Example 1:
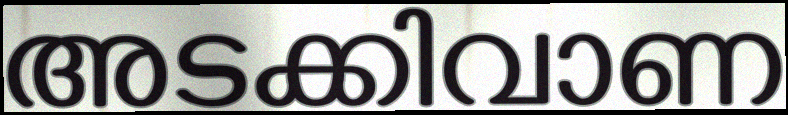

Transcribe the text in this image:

അടക്കിവാണ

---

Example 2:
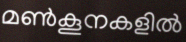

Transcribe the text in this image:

മൺകൂനകളിൽ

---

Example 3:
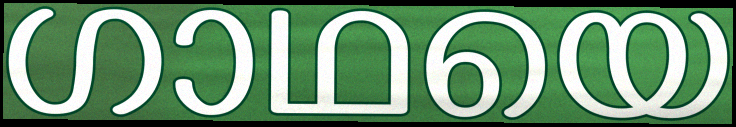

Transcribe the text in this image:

ഗാഥയെ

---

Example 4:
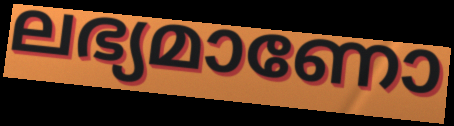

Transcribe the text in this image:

ലഭ്യമാണോ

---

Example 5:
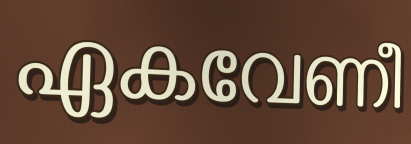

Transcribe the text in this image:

ഏകവേണീ